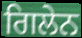
ਗਿਲੇਨ